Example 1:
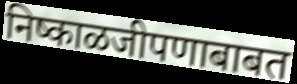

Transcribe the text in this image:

निष्काळजीपणाबाबत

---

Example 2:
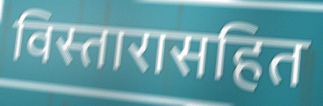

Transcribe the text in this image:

विस्तारासहित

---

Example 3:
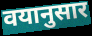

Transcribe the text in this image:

वयानुसार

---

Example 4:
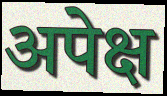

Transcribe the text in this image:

अपेक्ष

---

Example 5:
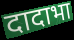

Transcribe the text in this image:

दादाभा